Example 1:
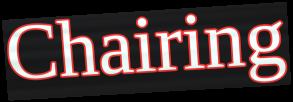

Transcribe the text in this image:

Chairing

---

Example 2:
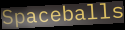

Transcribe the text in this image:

Spaceballs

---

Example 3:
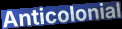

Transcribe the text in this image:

Anticolonial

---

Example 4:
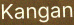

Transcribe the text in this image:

Kangan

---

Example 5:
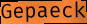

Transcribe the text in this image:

Gepaeck